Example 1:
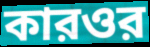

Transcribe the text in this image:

কারওর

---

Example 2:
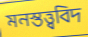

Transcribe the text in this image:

মনস্তত্ত্ববিদ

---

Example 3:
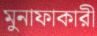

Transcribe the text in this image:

মুনাফাকারী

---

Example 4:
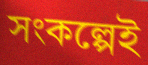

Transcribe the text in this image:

সংকল্পেই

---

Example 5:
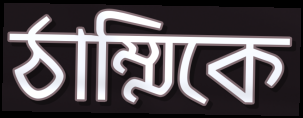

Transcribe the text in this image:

ঠাম্মিকে